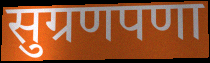
सुग्रणपणा